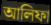
আলিফা